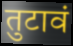
तुटावं